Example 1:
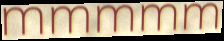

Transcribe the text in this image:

mmmmm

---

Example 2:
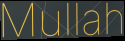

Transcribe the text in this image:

Mullah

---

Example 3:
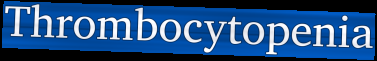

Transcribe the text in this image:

Thrombocytopenia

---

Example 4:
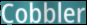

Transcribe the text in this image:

Cobbler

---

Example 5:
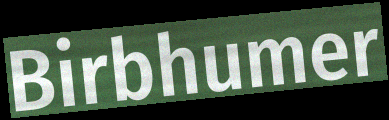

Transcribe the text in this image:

Birbhumer